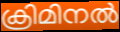
ക്രിമിനൽ